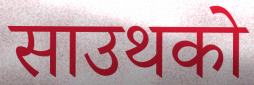
साउथको